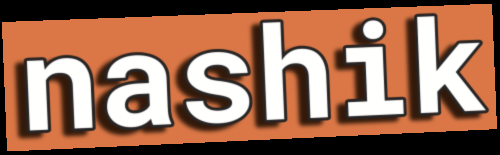
nashik